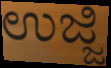
ಉಜ್ಜಿ